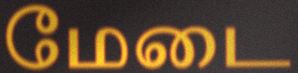
மேடை